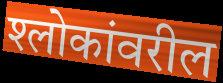
श्लोकांवरील